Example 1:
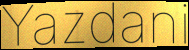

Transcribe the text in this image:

Yazdani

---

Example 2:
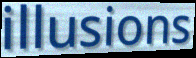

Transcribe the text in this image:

illusions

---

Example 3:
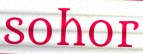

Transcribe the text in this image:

sohor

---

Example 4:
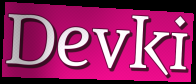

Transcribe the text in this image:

Devki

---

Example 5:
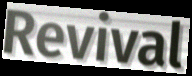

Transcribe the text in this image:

Revival